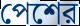
পেশের